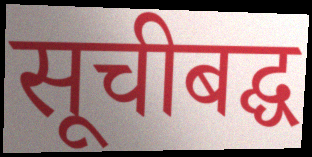
सूचीबद्घ